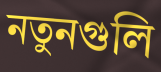
নতুনগুলি